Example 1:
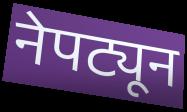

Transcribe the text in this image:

नेपट्यून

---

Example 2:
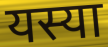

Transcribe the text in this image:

यस्या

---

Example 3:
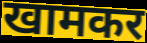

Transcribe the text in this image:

खामकर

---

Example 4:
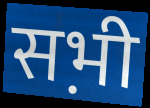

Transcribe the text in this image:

सभ़ी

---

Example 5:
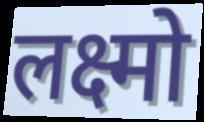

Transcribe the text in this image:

लक्ष्मो